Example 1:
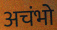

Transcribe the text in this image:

अचंभो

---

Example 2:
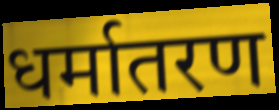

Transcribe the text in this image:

धर्मातरण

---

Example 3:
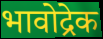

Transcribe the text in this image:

भावोद्रेक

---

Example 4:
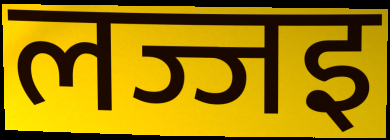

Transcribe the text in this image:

लज्जइ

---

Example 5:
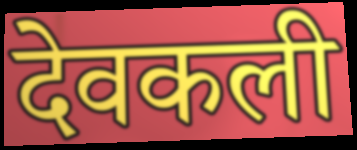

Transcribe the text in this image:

देवकली